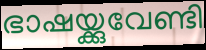
ഭാഷയ്ക്കുവേണ്ടി